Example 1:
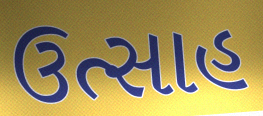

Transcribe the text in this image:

ઉત્સાહ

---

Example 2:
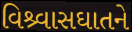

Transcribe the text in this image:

વિશ્ર્વાસઘાતને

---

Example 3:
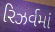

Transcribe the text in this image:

રિઝર્વમાં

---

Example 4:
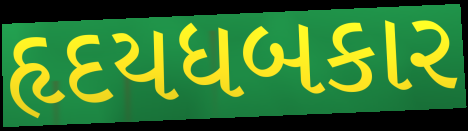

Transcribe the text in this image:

હૃદયધબકાર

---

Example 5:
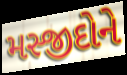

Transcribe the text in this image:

મસ્જીદોને